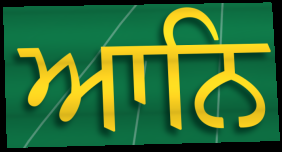
ਆਨਿ